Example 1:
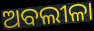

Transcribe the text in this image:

ଅବଲୀଳା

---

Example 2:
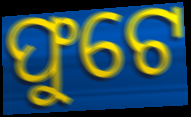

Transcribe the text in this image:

ଫୁଟେ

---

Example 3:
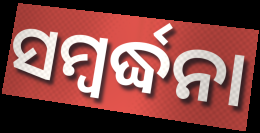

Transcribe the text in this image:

ସମ୍ୱର୍ଦ୍ଧନା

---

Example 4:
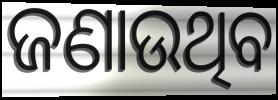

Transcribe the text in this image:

ଜଣାଉଥିବ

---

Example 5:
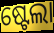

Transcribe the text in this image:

ଷ୍ଟେଲା